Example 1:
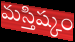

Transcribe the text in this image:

మస్తిష్కం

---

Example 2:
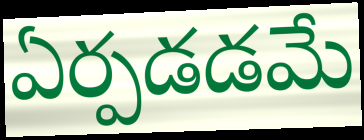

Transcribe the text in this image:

ఏర్పడడమే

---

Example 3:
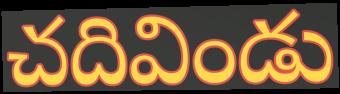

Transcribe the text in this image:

చదివిండు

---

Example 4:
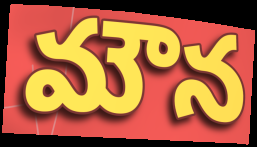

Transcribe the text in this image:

మౌన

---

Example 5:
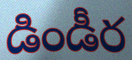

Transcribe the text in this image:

డిండీర